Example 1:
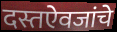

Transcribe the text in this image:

दस्तऐवजांचे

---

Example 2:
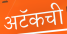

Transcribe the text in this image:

अटॅकची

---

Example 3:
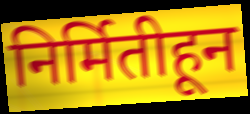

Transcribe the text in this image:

निर्मितीहून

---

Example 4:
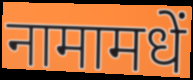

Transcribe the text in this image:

नामामधें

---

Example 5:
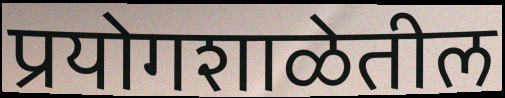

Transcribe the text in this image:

प्रयोगशाळेतील